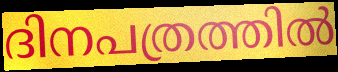
ദിനപത്രത്തിൽ